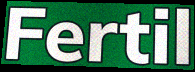
Fertil